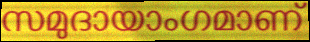
സമുദായാംഗമാണ്